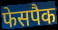
फेसपैक